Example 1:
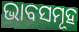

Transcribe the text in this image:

ଭାବସମୂହ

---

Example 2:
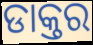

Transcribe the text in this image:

ଡାକ୍ତର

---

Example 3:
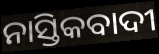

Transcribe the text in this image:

ନାସ୍ତିକବାଦୀ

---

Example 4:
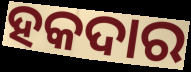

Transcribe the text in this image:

ହକଦାର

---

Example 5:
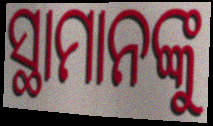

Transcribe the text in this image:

ସ୍ଥାମାନଙ୍କୁ